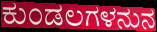
ಕುಂಡಲಗಳನುನ